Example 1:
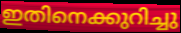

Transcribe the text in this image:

ഇതിനെക്കുറിച്ചു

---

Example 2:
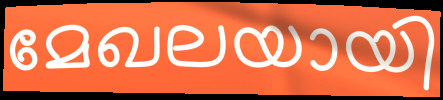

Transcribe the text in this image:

മേഖലയായി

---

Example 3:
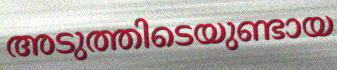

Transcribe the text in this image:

അടുത്തിടെയുണ്ടായ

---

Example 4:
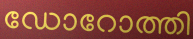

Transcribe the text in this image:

ഡോറോത്തി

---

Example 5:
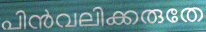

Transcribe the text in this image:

പിൻവലിക്കരുതേ